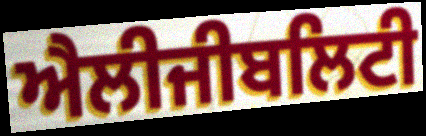
ਐਲੀਜੀਬਲਿਟੀ